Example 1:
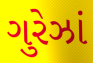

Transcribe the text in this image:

ગુરેઝાં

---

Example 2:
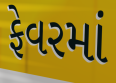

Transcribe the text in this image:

ફેવરમાં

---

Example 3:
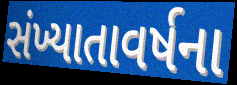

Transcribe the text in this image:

સંખ્યાતાવર્ષના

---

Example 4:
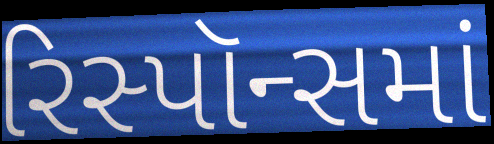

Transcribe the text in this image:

રિસ્પૉન્સમાં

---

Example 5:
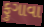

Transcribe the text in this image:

ફુગાવા